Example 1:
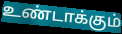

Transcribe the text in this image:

உண்டாக்கும்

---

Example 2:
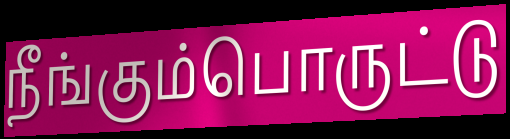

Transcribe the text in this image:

நீங்கும்பொருட்டு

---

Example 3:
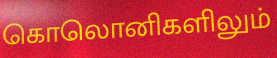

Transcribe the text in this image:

கொலொனிகளிலும்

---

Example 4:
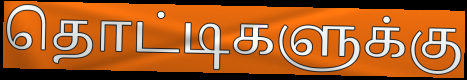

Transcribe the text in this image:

தொட்டிகளுக்கு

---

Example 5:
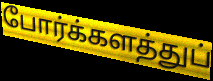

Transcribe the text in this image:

போர்க்களத்துப்